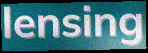
lensing